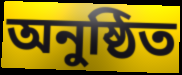
অনুষ্ঠিত